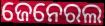
ଜେନେରଲ